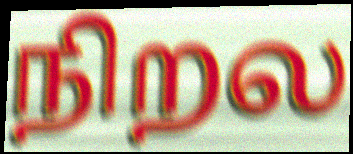
நிறல